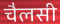
चैलसी